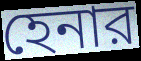
হেনার